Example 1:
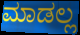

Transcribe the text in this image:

ಮಾಡಲ್ಲ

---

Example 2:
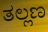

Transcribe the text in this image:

ತಲ್ಲಣ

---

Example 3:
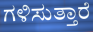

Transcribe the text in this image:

ಗಳಿಸುತ್ತಾರೆ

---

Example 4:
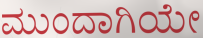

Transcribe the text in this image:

ಮುಂದಾಗಿಯೇ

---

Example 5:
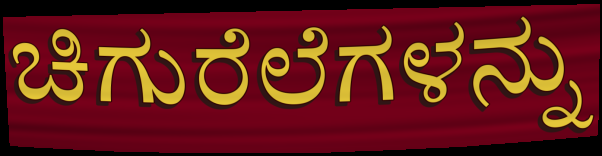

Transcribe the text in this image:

ಚಿಗುರೆಲೆಗಳನ್ನು